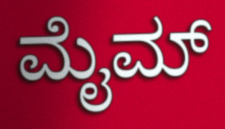
ಮೈಮ್